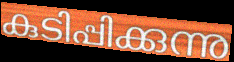
കുടിപ്പിക്കുന്നു